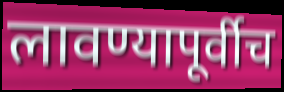
लावण्यापूर्वीच